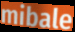
mibale